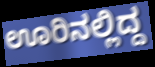
ಊರಿನಲ್ಲಿದ್ದ